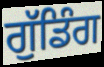
ਗੁੱਡਿੰਗ